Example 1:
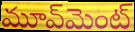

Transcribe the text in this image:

మూవ్‌మెంట్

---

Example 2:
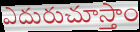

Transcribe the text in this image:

ఎదురుచూస్తాం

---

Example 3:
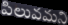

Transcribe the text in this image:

పిలువమని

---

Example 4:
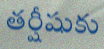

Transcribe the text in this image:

తర్షీషుకు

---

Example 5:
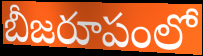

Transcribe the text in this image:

బీజరూపంలో